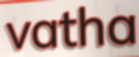
vatha